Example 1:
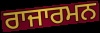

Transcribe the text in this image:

ਰਾਜਾਰਮਨ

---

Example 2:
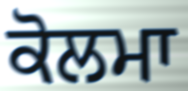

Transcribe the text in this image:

ਕੋਲਮਾ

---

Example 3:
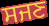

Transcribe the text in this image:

ਸਜਣ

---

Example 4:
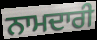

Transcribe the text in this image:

ਨਾਮਦਾਰੀ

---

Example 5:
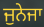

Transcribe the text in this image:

ਜੁਨੇਜਾ